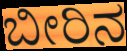
ಬೀರಿನ